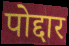
पोद्दार